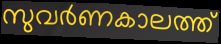
സുവർണകാലത്ത്